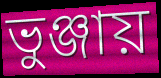
ভুঞ্জায়